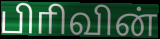
பிரிவின்